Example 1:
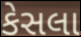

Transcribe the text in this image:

કેસલા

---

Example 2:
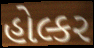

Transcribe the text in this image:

હોલ્કર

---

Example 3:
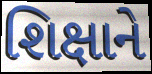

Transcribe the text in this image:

શિક્ષાને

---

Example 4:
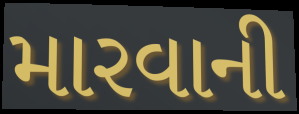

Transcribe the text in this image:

મારવાની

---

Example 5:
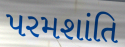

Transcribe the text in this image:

પરમશાંતિ